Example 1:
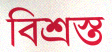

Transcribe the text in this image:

বিশ্রস্ত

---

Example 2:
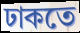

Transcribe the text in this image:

ঢাকতে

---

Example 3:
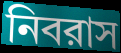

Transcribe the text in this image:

নিবরাস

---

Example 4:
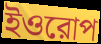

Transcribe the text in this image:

ইওরোপ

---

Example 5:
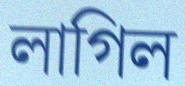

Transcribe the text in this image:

লাগিল